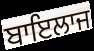
ਬਾਇਲਾਜ